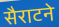
सैराटने